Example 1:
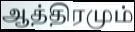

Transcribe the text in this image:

ஆத்திரமும்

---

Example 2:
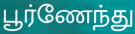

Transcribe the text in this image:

பூர்ணேந்து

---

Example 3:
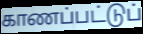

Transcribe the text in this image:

காணப்பட்டுப்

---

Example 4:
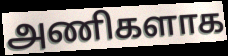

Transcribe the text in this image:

அணிகளாக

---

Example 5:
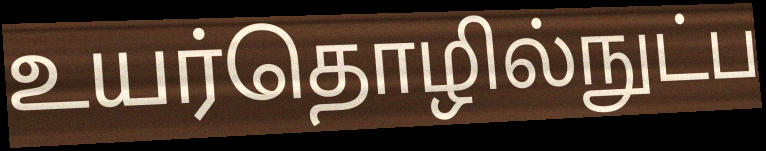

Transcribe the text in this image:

உயர்தொழில்நுட்ப